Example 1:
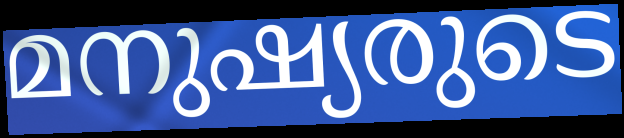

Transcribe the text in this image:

മനുഷ്യരുടെ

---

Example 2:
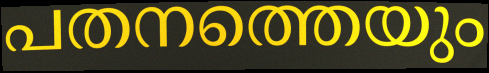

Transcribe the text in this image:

പതനത്തെയും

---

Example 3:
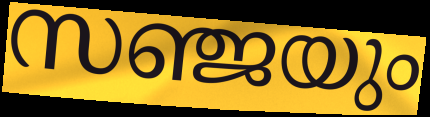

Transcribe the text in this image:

സഞ്ജയും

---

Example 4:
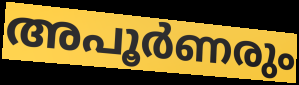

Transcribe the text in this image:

അപൂർണരും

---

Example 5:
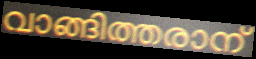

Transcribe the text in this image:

വാങ്ങിത്തരാന്